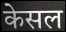
केसल